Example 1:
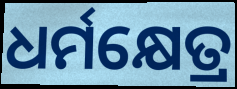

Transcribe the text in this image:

ଧର୍ମକ୍ଷେତ୍ର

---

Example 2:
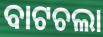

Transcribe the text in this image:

ବାଟଚଲା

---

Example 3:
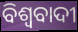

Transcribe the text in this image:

ବିଶ୍ଵବାଦୀ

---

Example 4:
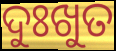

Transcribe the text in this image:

ଦୁଃଖୁତ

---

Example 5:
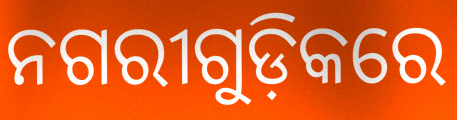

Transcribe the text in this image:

ନଗରୀଗୁଡ଼ିକରେ